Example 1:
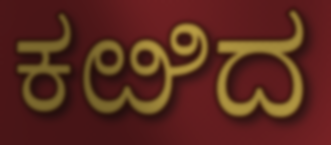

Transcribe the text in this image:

ಕೞಿದ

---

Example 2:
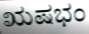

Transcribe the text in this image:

ಋಷಭಂ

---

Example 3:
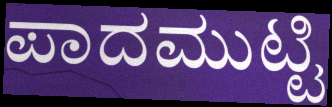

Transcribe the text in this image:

ಪಾದಮುಟ್ಟಿ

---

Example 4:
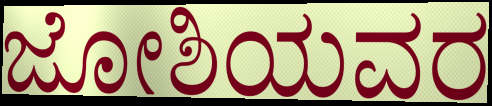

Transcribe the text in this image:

ಜೋಶಿಯವರ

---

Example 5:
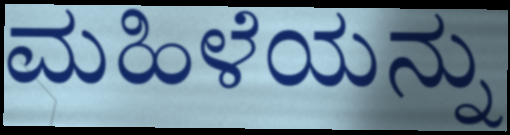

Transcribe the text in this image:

ಮಹಿಳೆಯನ್ನು